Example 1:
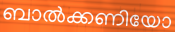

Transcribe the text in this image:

ബാൽക്കണിയോ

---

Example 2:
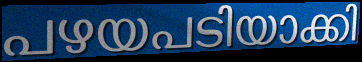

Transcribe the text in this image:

പഴയപടിയാക്കി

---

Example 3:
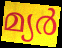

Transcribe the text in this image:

മ്യർ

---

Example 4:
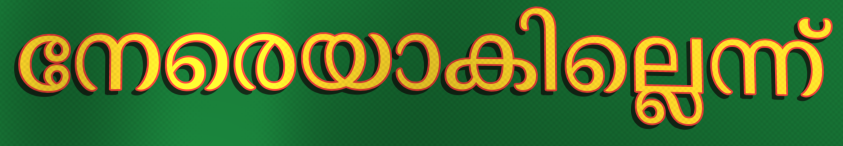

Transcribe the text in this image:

നേരെയാകില്ലെന്ന്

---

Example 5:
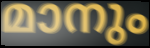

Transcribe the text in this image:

മാനും